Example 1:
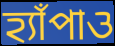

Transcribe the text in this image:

হ্যাঁপাও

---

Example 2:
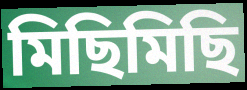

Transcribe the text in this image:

মিছিমিছি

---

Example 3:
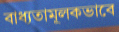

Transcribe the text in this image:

বাধ্যতামূলকভাবে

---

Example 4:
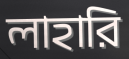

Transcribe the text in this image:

লাহারি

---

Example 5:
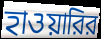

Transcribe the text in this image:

হাওয়ারির